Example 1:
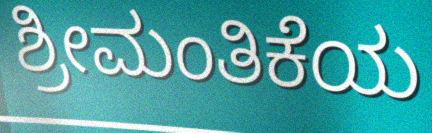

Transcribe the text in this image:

ಶ್ರೀಮಂತಿಕೆಯ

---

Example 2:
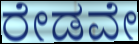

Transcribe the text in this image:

ರೇಡವೇ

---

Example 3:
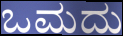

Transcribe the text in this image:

ಒಮದು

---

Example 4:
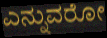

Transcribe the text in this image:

ಎನ್ನುವರೋ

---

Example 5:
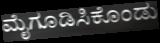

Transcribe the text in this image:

ಮೈಗೂಡಿಸಿಕೊಂಡು